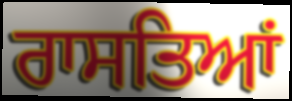
ਰਾਸਤਿਆਂ